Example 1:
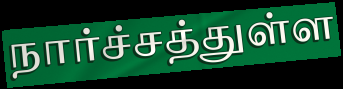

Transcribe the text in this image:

நார்ச்சத்துள்ள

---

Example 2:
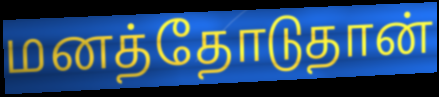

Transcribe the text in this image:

மனத்தோடுதான்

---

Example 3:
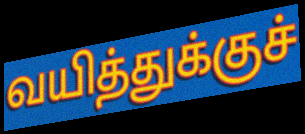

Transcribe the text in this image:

வயித்துக்குச்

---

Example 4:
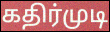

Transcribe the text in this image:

கதிர்முடி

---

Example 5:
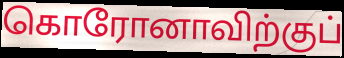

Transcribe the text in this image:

கொரோனாவிற்குப்